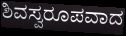
ಶಿವಸ್ವರೂಪವಾದ